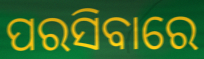
ପରସିବାରେ